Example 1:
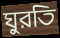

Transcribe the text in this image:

ঘুরতি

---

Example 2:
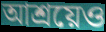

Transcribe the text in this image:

আশ্রয়েও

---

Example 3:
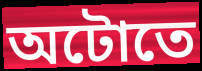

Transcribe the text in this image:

অটোতে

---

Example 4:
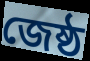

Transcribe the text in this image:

জেষ্ঠ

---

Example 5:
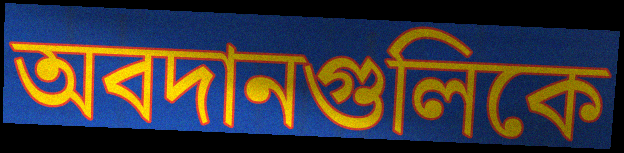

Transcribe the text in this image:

অবদানগুলিকে